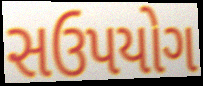
સઉપયોગ